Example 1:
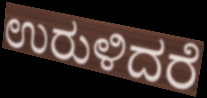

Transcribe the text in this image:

ಉರುಳಿದರೆ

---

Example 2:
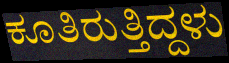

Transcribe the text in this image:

ಕೂತಿರುತ್ತಿದ್ದಳು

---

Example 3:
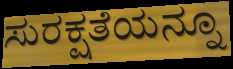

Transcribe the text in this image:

ಸುರಕ್ಷತೆಯನ್ನೂ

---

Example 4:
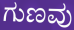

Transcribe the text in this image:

ಗುಣವು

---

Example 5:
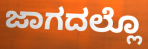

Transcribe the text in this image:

ಜಾಗದಲ್ಲೊ